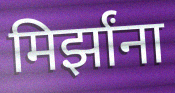
मिर्झांना